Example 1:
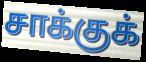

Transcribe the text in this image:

சாக்குக்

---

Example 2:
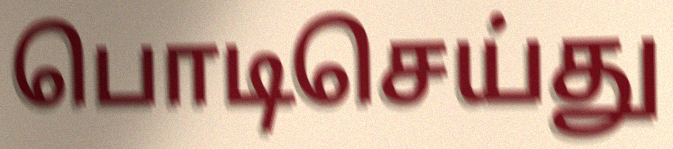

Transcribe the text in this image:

பொடிசெய்து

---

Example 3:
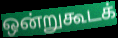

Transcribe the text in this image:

ஒன்றுகூடக்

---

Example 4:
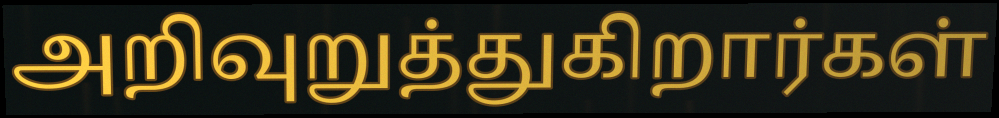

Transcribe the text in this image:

அறிவுறுத்துகிறார்கள்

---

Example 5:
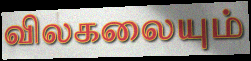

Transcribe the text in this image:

விலகலையும்